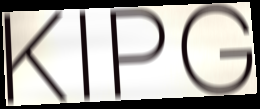
KIPG